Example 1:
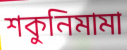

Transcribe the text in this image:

শকুনিমামা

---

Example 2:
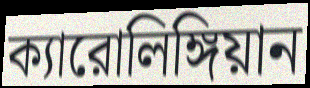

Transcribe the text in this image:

ক্যারোলিঙ্গিয়ান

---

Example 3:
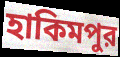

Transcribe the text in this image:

হাকিমপুর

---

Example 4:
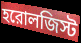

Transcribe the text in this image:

হরোলজিস্ট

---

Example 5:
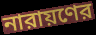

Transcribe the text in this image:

নারায়ণের